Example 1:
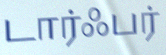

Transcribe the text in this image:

டார்ஃபர்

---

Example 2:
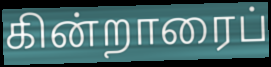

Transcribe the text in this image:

கின்றாரைப்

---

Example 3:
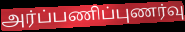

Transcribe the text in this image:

அர்ப்பணிப்புணர்வு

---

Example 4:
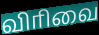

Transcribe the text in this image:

விரிவை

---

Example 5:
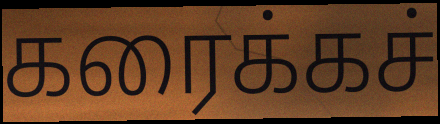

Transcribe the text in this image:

கரைக்கச்